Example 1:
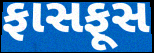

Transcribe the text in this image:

ફાસફૂસ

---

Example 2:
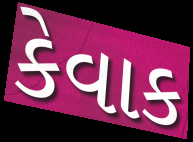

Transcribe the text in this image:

કેવાક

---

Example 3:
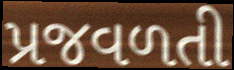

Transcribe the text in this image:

પ્રજવળતી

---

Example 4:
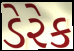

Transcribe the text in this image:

ડેરેક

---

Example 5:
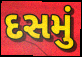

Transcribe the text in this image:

દસમું